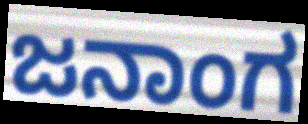
ಜನಾಂಗ